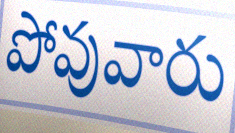
పోవువారు